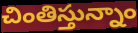
చింతిస్తున్నాం